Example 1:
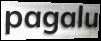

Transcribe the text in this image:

pagalu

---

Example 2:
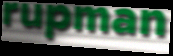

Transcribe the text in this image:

rupman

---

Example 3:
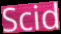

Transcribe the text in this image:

Scid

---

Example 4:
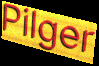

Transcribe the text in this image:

Pilger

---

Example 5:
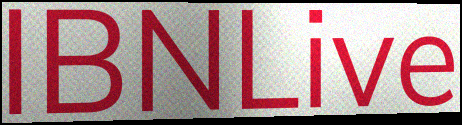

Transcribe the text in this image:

IBNLive